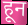
हून